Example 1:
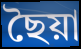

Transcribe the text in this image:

ছৈয়া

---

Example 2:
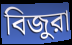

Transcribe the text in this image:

বিজুরা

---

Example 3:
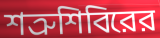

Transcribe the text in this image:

শত্রুশিবিরের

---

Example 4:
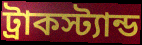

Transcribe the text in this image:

ট্রাকস্ট্যান্ড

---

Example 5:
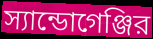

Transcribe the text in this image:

স্যান্ডোগেঞ্জির